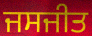
ਜਸਜੀਤ